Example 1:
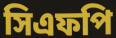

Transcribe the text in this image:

সিএফপি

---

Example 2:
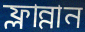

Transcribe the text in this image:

ফ্লান্নান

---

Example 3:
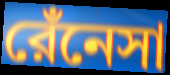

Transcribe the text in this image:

রেঁনেসা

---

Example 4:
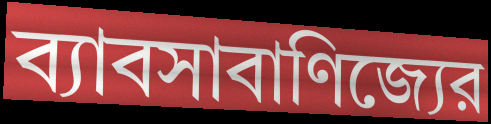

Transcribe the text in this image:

ব্যাবসাবাণিজ্যের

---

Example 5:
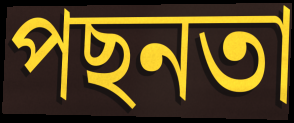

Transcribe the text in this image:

পছনতা